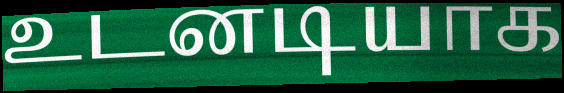
உடனடியாக